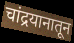
चांद्रयानातून